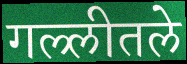
गल्लीतले